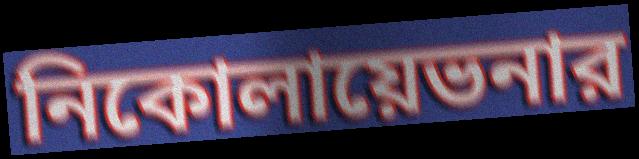
নিকোলায়েভনার